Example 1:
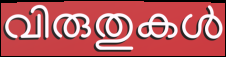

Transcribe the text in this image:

വിരുതുകൾ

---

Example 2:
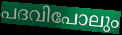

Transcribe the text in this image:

പദവിപോലും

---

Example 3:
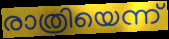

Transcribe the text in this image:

രാത്രിയെന്ന്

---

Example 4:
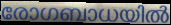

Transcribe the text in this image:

രോഗബാധയിൽ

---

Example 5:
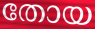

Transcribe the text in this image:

തോയ